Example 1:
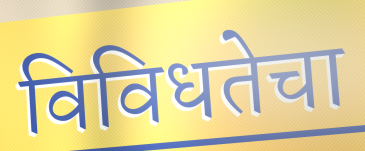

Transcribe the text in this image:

विविधतेचा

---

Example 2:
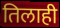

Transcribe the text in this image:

तिलाही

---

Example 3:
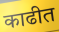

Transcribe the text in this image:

काढीत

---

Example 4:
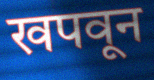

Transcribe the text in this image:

खपवून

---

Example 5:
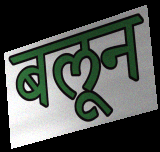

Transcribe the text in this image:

बलून